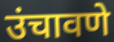
उंचावणे